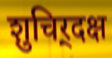
शुचिर्दक्ष